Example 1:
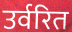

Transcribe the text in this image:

उर्वरित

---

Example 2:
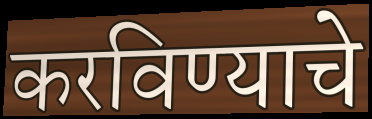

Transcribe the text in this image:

करविण्याचे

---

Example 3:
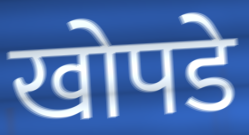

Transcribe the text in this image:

खोपडे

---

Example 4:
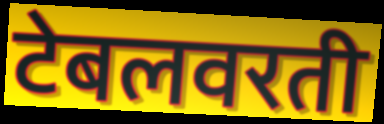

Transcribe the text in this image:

टेबलवरती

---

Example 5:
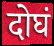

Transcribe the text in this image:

दोघं